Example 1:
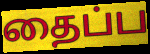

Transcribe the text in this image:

தைப்ப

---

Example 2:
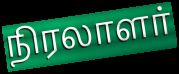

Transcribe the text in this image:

நிரலாளர்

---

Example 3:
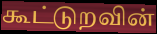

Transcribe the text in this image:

கூட்டுறவின்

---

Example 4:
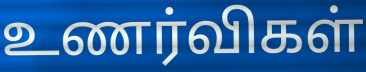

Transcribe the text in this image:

உணர்விகள்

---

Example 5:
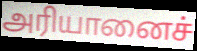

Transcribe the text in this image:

அரியானைச்